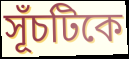
সূঁচটিকে